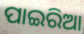
ପାଇରିଆ